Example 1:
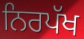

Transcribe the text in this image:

ਨਿਰਪੱਖ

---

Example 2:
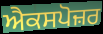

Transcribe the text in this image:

ਐਕਸਪੋਜ਼ਰ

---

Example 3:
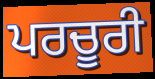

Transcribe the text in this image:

ਪਰਚੂਰੀ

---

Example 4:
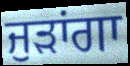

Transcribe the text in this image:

ਜੁੜਾਂਗਾ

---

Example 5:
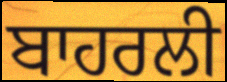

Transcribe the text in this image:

ਬਾਹਰਲੀ